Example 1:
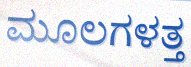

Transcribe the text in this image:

ಮೂಲಗಳತ್ತ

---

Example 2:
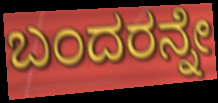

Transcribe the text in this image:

ಬಂದರನ್ನೇ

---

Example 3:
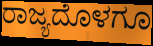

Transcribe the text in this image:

ರಾಜ್ಯದೊಳಗೂ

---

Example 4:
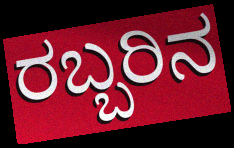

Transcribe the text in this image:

ರಬ್ಬರಿನ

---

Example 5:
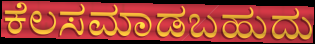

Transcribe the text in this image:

ಕೆಲಸಮಾಡಬಹುದು